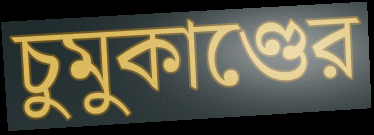
চুমুকাণ্ডের